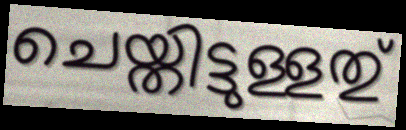
ചെയ്തിട്ടുള്ളതു്